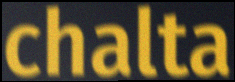
chalta